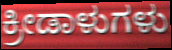
ಕ್ರೀಡಾಳುಗಳು